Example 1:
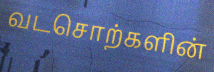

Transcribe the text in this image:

வடசொற்களின்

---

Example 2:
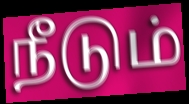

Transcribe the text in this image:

நீடும்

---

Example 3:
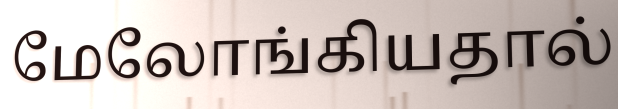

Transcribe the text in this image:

மேலோங்கியதால்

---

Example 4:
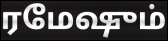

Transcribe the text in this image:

ரமேஷும்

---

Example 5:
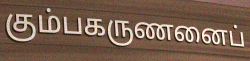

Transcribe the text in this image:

கும்பகருணனைப்